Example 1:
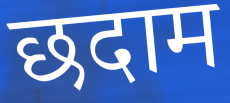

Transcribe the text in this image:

छदाम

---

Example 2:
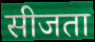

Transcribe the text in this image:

सीजता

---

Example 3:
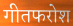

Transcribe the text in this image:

गीतफरोश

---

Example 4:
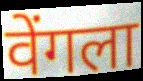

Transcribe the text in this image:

वेंगला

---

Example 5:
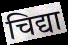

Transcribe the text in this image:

चिद्या